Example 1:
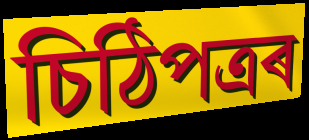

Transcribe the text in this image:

চিঠিপত্ৰৰ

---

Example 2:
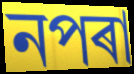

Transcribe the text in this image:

নপৰা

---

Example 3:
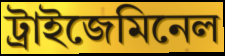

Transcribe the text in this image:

ট্ৰাইজেমিনেল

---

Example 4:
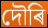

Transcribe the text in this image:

দৌৰি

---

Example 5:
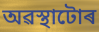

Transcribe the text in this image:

অৱস্থাটোৰ